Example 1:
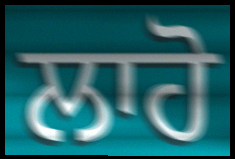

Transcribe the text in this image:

ਲਾਹੋ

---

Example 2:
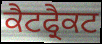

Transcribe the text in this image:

ਕੈਟਫ੍ਰੈਕਟ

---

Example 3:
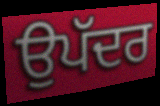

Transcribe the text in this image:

ਉਪੱਦਰ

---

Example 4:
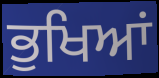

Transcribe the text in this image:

ਭੁਖਿਆਂ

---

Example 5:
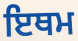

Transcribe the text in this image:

ਇਥਮ